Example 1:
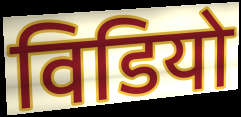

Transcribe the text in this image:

विडियो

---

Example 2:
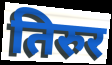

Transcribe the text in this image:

तिरुर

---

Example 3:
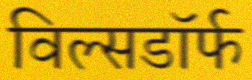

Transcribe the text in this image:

विल्सडॉर्फ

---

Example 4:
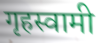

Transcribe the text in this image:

गृहस्वामी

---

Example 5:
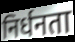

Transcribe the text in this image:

निर्धनता